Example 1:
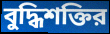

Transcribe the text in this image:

বুদ্ধিশক্তির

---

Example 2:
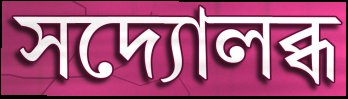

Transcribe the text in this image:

সদ্যোলব্ধ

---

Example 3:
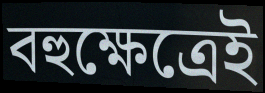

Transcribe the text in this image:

বহুক্ষেত্রেই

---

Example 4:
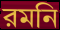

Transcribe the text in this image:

রমনি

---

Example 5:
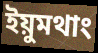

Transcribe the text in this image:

ইয়ুমথাং